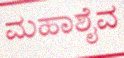
ಮಹಾಶೈವ